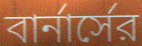
বার্নার্সের